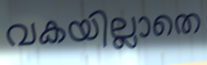
വകയില്ലാതെ